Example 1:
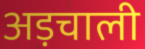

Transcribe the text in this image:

अड़चाली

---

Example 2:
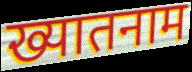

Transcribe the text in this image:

ख्यातनाम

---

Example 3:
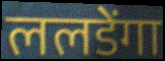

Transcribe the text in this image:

ललडेंगा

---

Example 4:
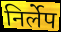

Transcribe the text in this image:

निर्लेप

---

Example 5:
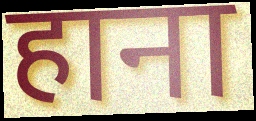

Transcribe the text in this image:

हाना